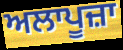
ਅਲਾਪੂਜ਼ਾ